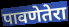
पावणेतेरा